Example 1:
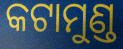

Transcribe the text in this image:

କଟାମୁଣ୍ଡ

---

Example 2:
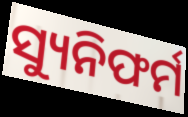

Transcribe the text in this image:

ସ୍ୟୁନିଫର୍ମ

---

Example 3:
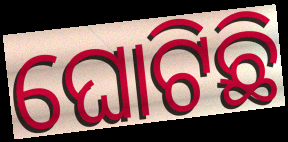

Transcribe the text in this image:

ଘୋଟିଛି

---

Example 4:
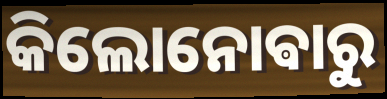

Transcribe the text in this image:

କିଲୋନୋଵାରୁ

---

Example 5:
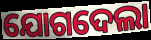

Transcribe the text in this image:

ଯୋଗଦେଲା